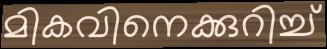
മികവിനെക്കുറിച്ച്